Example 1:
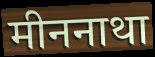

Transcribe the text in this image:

मीननाथा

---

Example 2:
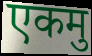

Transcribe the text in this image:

एकमु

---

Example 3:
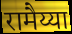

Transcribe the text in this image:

रामैय्या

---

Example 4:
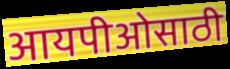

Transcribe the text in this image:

आयपीओसाठी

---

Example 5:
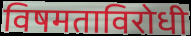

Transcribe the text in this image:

विषमताविरोधी